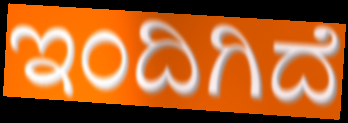
ಇಂದಿಗಿದೆ